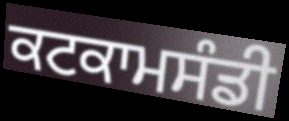
ਕਟਕਾਮਸੰਡੀ